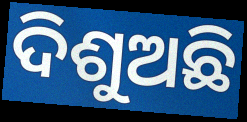
ଦିଶୁଅଛି